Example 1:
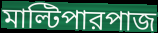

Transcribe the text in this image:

মাল্টিপারপাজ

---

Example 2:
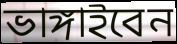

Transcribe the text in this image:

ভাঙ্গাইবেন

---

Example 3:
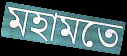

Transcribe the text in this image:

মহামতে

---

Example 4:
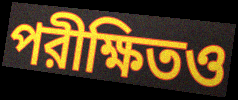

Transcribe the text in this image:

পরীক্ষিতও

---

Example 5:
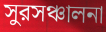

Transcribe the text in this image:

সুরসঞ্চালনা